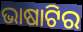
ଭାଷାଟିର